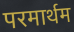
परमार्थम